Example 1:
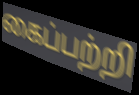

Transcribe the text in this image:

கைப்பற்றி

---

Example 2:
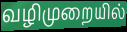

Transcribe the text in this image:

வழிமுறையில்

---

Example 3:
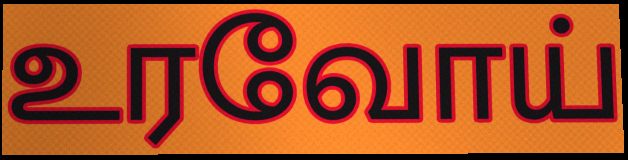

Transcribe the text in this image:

உரவோய்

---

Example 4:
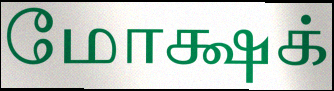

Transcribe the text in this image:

மோக்ஷக்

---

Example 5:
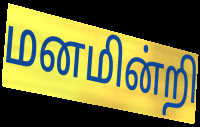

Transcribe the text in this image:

மனமின்றி